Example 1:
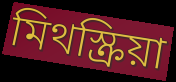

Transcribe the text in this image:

মিথস্ক্রিয়া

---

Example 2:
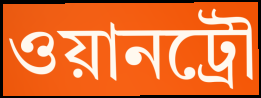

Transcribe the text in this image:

ওয়ানট্রৌ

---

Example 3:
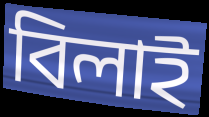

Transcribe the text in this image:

বিলাই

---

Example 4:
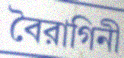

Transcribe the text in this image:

বৈরাগিনী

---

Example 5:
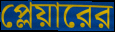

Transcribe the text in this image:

প্লেয়ারের